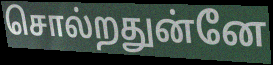
சொல்றதுன்னே